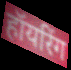
हॉयरिंग